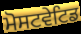
ਮੋਸਟਵੇਟਿਡ